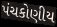
પંચકોણીય